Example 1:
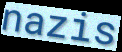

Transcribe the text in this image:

nazis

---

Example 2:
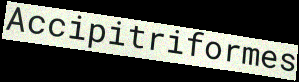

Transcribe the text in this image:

Accipitriformes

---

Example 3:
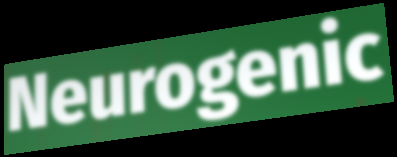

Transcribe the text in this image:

Neurogenic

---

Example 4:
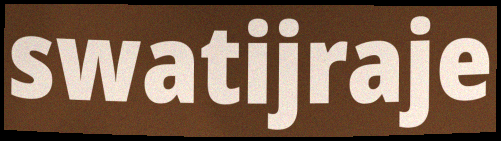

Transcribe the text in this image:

swatijraje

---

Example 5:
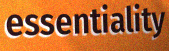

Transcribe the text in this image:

essentiality